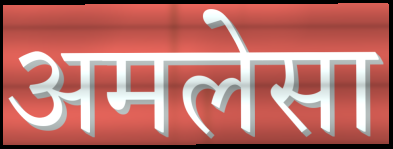
अमलेसा